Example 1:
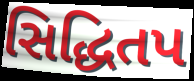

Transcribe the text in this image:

સિદ્ધિતપ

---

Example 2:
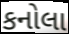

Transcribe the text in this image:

કનોલા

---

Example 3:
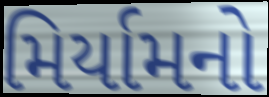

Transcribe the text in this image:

મિર્યામનો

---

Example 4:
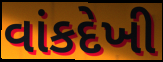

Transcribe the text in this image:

વાંકદેખી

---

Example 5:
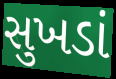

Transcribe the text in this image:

સુખડાં